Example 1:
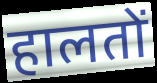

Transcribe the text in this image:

हालतों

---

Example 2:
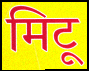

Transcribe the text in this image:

मिटू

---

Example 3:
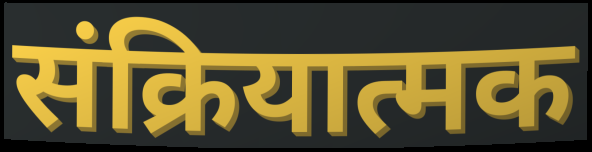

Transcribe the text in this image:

संक्रियात्मक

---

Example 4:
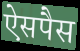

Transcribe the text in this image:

ऐसपैस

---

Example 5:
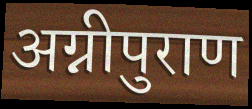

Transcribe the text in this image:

अग्नीपुराण